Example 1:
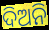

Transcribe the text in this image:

ଦିଅନି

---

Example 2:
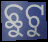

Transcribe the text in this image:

ଛୁଟୁ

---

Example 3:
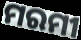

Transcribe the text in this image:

ମରମୀ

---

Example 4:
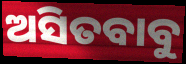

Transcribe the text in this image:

ଅସିତବାବୁ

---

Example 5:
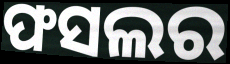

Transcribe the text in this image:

ଫସଲର